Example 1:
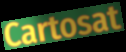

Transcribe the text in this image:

Cartosat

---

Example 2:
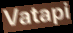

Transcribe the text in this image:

Vatapi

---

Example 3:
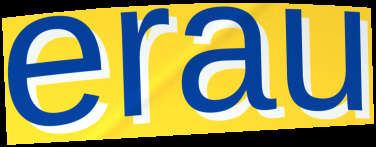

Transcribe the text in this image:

erau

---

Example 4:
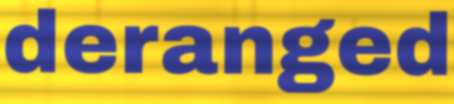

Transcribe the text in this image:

deranged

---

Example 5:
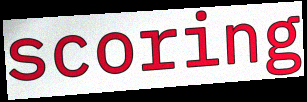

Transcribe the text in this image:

scoring